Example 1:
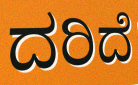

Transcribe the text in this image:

ದರಿದೆ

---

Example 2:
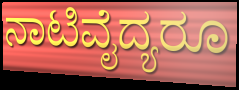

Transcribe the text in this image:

ನಾಟಿವೈದ್ಯರೂ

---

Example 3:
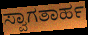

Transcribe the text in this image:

ಸ್ವಾಗತಾರ್ಹ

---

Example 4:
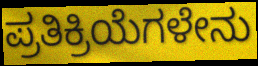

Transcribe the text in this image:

ಪ್ರತಿಕ್ರಿಯೆಗಳೇನು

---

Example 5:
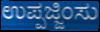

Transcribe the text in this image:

ಉಪ್ಪಜ್ಜಿಂಸು